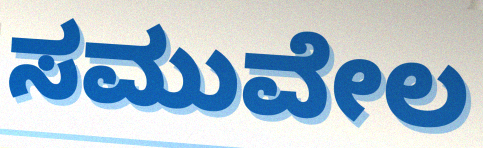
ಸಮುವೇಲ